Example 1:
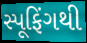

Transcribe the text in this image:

સ્પૂફિંગથી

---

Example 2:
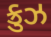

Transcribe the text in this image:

ક્રુઝ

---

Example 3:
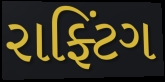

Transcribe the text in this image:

રાફ્ટિંગ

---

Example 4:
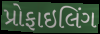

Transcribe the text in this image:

પ્રોફાઇલિંગ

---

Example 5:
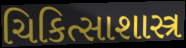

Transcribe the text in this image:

ચિકિત્સાશાસ્ત્ર